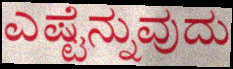
ಎಷ್ಟೆನ್ನುವುದು